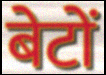
बेटों